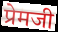
प्रेमजी